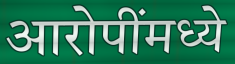
आरोपींमध्ये